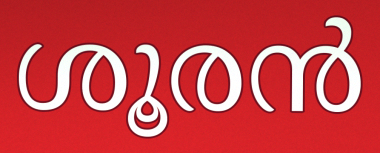
ശൂരൻ